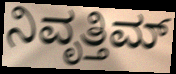
ನಿವೃತ್ತಿಮ್